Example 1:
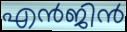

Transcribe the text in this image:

എൻജിൻ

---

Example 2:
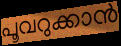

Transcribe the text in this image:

പൂവറുക്കാൻ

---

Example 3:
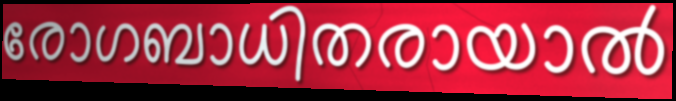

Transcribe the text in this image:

രോഗബാധിതരായാൽ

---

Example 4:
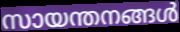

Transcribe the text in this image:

സായന്തനങ്ങൾ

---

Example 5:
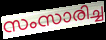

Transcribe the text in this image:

സംസാരിച്ച